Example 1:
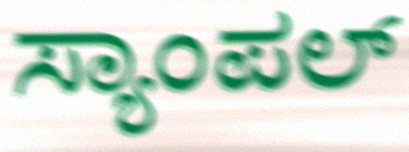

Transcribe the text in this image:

ಸ್ಯಾಂಪಲ್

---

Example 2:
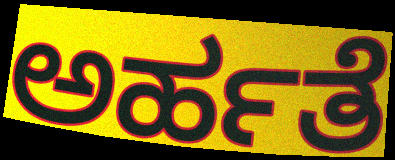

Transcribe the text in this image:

ಅರ್ಹತೆ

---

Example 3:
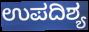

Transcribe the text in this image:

ಉಪದಿಶ್ಯ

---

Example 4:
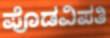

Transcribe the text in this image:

ಪೊಡವಿಪತಿ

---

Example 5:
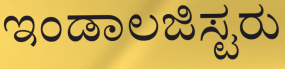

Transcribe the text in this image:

ಇಂಡಾಲಜಿಸ್ಟರು